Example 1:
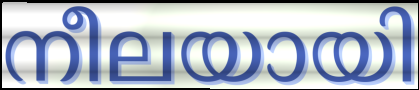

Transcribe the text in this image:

നീലയായി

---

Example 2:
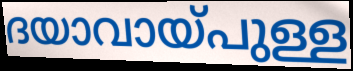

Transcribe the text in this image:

ദയാവായ്പുള്ള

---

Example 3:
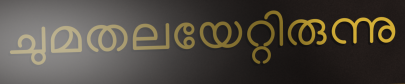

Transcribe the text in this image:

ചുമതലയേറ്റിരുന്നു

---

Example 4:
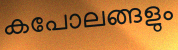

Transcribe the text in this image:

കപോലങ്ങളും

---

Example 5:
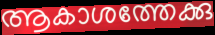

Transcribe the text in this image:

ആകാശത്തേക്കു